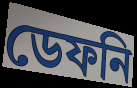
ডেফনি